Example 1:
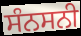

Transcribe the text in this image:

ਸੰਨਸਨੀ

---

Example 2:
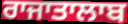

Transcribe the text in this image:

ਰਾਜਾਤਾਲਾਬ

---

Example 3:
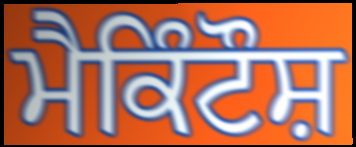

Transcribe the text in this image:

ਮੈਕਿੰਟੌਸ਼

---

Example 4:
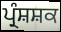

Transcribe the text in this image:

ਪ੍ਰੰਸ਼ਸ਼ਕ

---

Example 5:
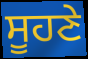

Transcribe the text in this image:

ਸੂਹਣੇ